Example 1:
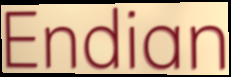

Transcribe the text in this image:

Endian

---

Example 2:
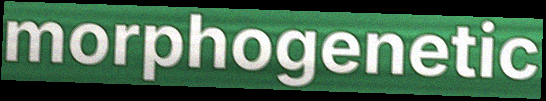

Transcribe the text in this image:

morphogenetic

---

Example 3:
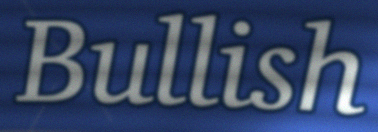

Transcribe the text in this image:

Bullish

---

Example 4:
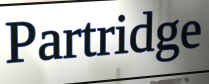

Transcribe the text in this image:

Partridge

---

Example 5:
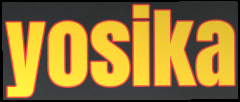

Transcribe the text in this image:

yosika